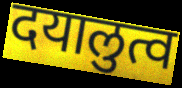
दयालुत्व